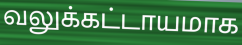
வலுக்கட்டாயமாக